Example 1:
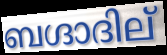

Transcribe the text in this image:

ബഗ്ദാദില്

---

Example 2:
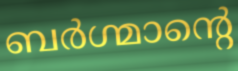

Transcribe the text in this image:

ബർഗ്മാന്റെ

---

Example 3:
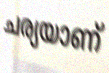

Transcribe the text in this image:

ചര്യയാണ്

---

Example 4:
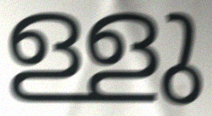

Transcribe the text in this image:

ള്ളു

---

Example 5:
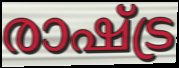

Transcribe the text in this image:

രാഷ്ട്ര